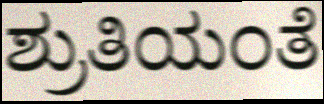
ಶ್ರುತಿಯಂತೆ